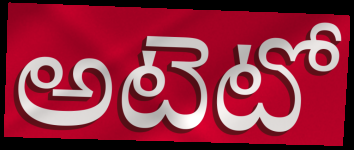
అటెటో